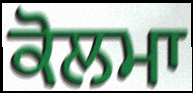
ਕੋਲਮਾ